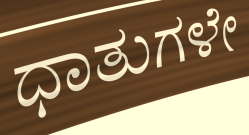
ಧಾತುಗಳೇ